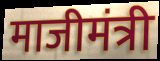
माजीमंत्री